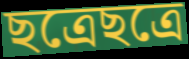
ছত্রেছত্রে